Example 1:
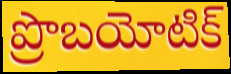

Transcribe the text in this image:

ప్రొబయోటిక్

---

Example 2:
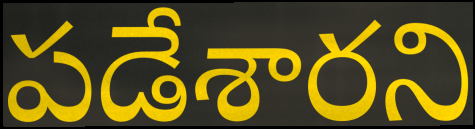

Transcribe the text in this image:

పడేశారని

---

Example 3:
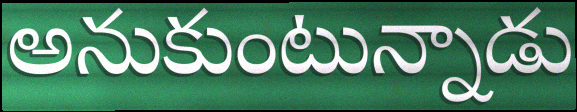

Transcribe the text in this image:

అనుకుంటున్నాడు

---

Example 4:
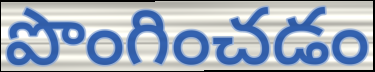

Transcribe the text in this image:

పొంగించడం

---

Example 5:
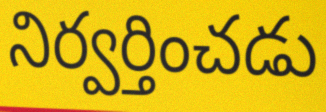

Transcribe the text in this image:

నిర్వర్తించడు